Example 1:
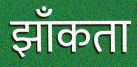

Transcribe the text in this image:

झाँकता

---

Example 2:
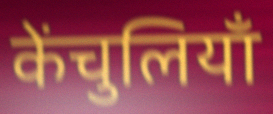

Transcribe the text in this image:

केंचुलियाँ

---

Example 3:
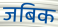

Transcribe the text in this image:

जबिक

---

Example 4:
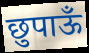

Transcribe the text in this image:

छुपाऊँ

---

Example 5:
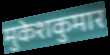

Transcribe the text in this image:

मुकेशकुमार